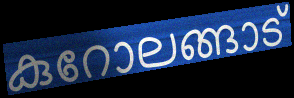
കുറോലങ്ങാട്